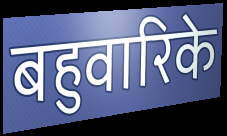
बहुवारिके